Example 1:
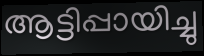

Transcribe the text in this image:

ആട്ടിപ്പായിച്ചു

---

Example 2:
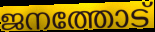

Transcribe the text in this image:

ജനത്തോട്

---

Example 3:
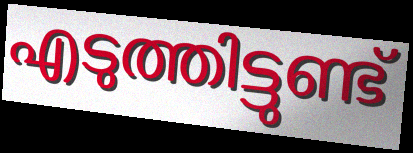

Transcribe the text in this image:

എടുത്തിട്ടുണ്ട്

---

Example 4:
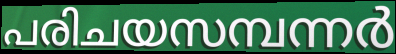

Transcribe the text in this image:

പരിചയസമ്പന്നർ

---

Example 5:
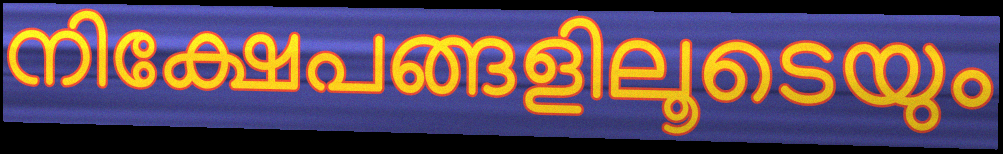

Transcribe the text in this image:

നിക്ഷേപങ്ങളിലൂടെയും